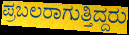
ಪ್ರಬಲರಾಗುತ್ತಿದ್ದರು